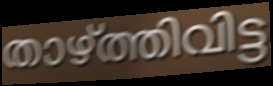
താഴ്ത്തിവിട്ട